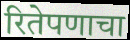
रितेपणाचा